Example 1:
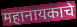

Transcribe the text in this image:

महानायकाचे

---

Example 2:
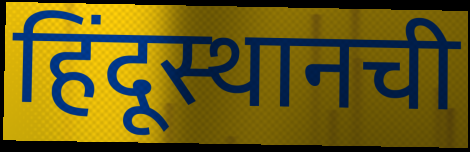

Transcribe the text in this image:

हिंदूस्थानची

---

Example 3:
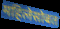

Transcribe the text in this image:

महिलेसोबत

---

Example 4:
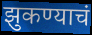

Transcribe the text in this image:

झुकण्याचं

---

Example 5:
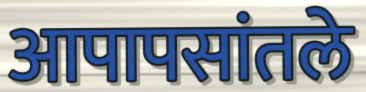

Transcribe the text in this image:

आपापसांतले